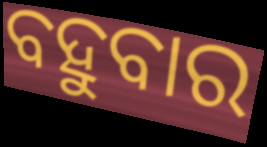
ବହୁବାର